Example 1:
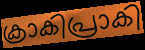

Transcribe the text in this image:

ക്രാകിപ്രാകി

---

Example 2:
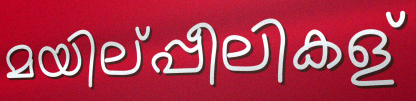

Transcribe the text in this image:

മയില്പ്പീലികള്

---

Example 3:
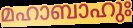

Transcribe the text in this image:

മഹാബാഹുഃ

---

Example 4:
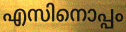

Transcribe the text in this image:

എസിനൊപ്പം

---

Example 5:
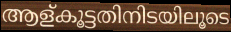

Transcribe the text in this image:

ആള്കൂട്ടതിനിടയിലൂടെ